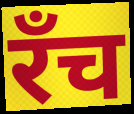
रँच